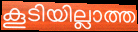
കൂടിയില്ലാത്ത